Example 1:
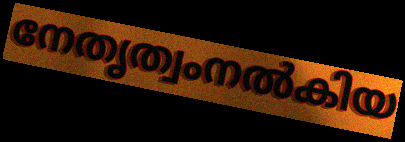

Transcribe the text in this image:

നേതൃത്വംനൽകിയ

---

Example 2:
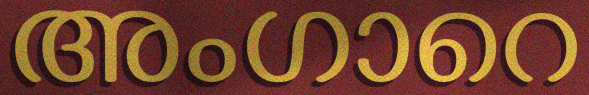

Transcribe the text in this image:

അംഗാറെ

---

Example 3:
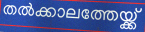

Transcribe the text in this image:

തൽക്കാലത്തേയ്ക്ക്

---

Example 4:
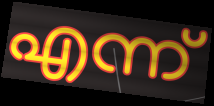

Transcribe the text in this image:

എന്ന്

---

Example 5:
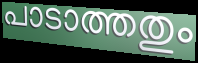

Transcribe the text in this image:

പാടാത്തതും